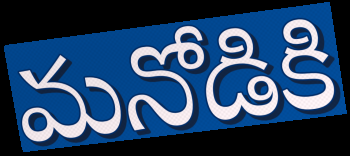
మనోడికి